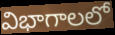
విభాగాలలో